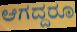
ಆಗದ್ದರೂ